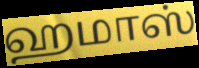
ஹமாஸ்